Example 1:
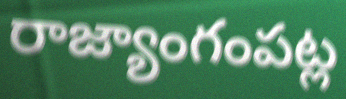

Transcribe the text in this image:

రాజ్యాంగంపట్ల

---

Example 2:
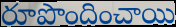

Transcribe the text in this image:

రూపొందించాయి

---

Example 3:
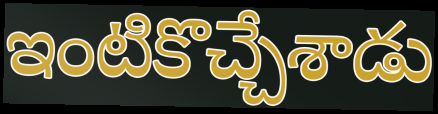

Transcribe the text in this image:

ఇంటికొచ్చేశాడు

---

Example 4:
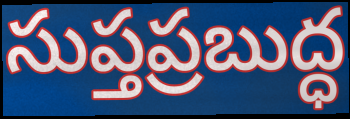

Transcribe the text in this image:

సుప్తప్రబుద్ధ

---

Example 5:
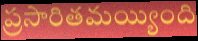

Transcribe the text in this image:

ప్రసారితమయ్యింది